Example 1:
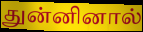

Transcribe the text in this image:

துன்னினால்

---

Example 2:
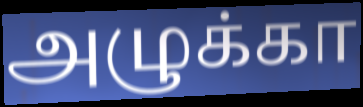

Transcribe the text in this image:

அழுக்கா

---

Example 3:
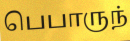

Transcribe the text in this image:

பெபாருந்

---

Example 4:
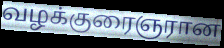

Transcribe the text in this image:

வழக்குரைஞரான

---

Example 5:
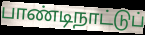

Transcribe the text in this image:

பாண்டிநாட்டுப்